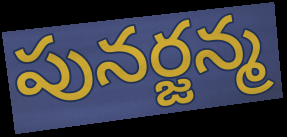
పునర్జన్మ